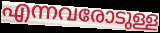
എന്നവരോടുള്ള